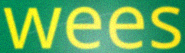
wees